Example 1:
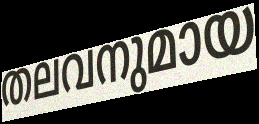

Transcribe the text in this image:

തലവനുമായ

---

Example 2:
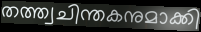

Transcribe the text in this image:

തത്ത്വചിന്തകനുമാക്കി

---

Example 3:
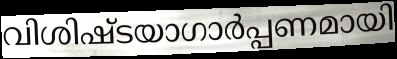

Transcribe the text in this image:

വിശിഷ്ടയാഗാർപ്പണമായി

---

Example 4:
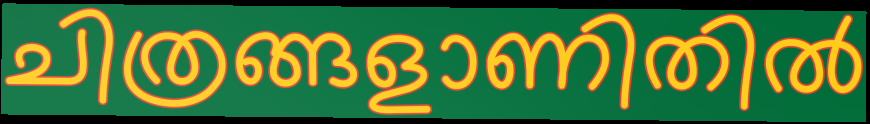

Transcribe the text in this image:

ചിത്രങ്ങളാണിതിൽ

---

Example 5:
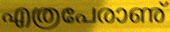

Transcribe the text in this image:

എത്രപേരാണു്